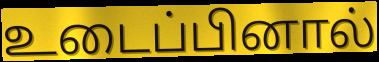
உடைப்பினால்